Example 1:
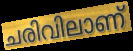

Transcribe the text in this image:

ചരിവിലാണ്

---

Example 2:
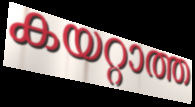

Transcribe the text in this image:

കയറ്റാത്ത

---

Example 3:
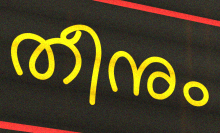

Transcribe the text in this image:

തീനും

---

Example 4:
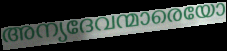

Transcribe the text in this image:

അന്യദേവന്മാരെയോ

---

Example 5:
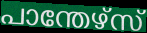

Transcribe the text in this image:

പാന്തേഴ്സ്